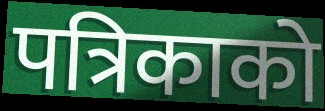
पत्रिकाको